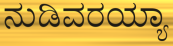
ನುಡಿವರಯ್ಯಾ